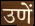
उणें